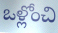
ఒళ్లోంచి